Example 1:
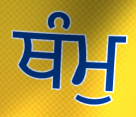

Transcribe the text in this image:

ਥੰਮੁ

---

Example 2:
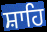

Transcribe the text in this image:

ਸ਼ਾਹਿ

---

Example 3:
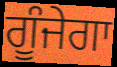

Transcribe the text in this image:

ਗੂੰਜੇਗਾ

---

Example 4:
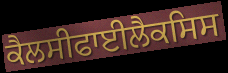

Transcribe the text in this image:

ਕੈਲਸੀਫਾਈਲੈਕਸਿਸ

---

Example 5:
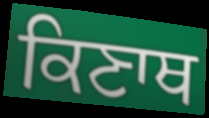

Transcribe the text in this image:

ਕਿਣਾਥ